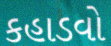
કહાડવો